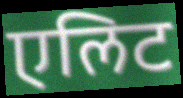
एलिट